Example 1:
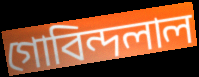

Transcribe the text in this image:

গোবিন্দলাল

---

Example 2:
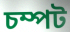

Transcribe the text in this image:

চম্পট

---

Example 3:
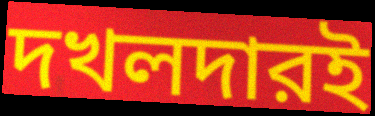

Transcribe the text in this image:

দখলদারই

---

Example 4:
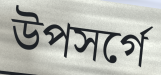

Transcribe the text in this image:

উপসর্গে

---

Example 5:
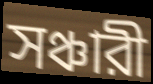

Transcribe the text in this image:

সঞ্চারী